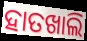
ହାତଖାଲି